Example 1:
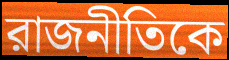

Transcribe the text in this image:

রাজনীতিকে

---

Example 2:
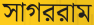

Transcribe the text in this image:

সাগররাম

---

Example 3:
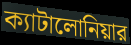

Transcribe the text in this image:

ক্যাটালোনিয়ার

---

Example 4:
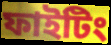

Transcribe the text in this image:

ফাইটিং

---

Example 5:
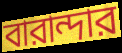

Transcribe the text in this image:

বারান্দার